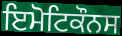
ਇਮੋਟਿਕੌਨਸ